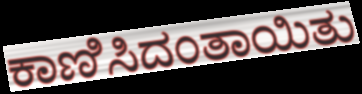
ಕಾಣಿಸಿದಂತಾಯಿತು